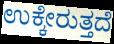
ಉಕ್ಕೇರುತ್ತದೆ